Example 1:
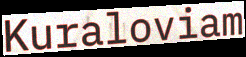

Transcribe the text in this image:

Kuraloviam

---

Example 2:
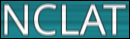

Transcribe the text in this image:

NCLAT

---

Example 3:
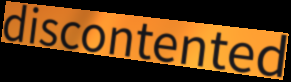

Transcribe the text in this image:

discontented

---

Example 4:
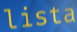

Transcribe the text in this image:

lista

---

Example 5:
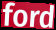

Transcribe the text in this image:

ford